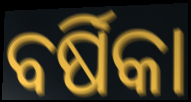
ବର୍ଷିକା